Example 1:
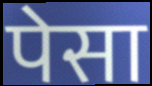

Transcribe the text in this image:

पेसा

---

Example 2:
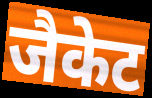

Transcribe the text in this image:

जैकेट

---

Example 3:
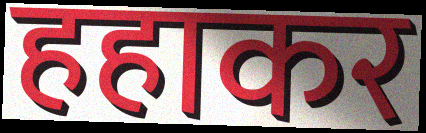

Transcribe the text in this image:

हहाकर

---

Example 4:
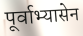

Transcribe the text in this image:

पूर्वाभ्यासेन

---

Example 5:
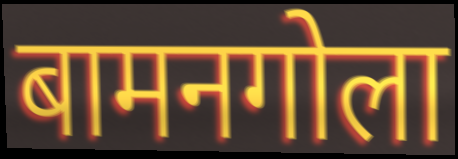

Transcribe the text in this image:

बामनगोला